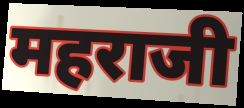
महराजी